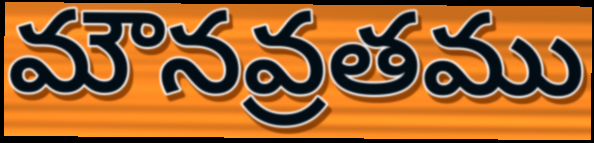
మౌనవ్రతము